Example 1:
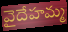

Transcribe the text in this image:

వైదేహమ్మ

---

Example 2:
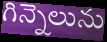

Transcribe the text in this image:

గిన్నెలును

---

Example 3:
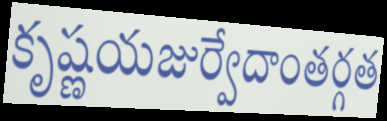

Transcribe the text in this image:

కృష్ణయజుర్వేదాంతర్గత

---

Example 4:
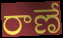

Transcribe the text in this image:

రాణే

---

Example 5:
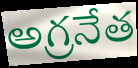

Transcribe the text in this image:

అగ్రనేత